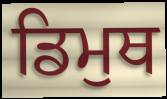
ਡਿਮੁਥ